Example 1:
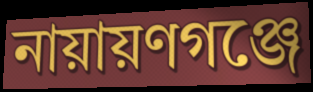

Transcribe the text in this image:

নায়ায়ণগঞ্জে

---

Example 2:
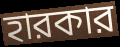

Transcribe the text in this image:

হারকার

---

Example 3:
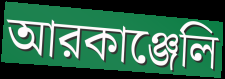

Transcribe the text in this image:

আরকাঞ্জেলি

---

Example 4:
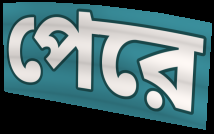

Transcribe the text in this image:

পেরে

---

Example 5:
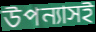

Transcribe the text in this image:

উপন্যাসই